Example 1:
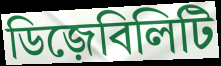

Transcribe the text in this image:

ডিজ়েবিলিটি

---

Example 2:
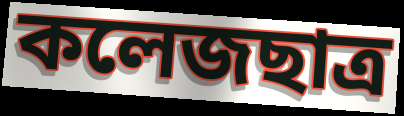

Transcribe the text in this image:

কলেজছাত্র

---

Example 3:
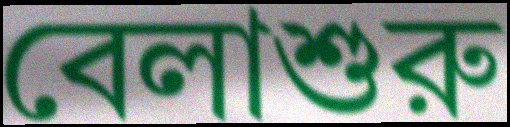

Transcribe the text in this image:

বেলাশুরু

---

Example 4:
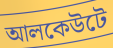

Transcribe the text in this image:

আলকেউটে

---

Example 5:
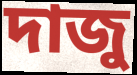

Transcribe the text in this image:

দাজু